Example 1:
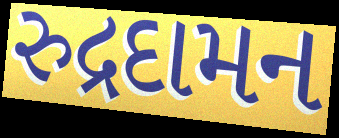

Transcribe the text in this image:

રુદ્રદામન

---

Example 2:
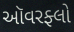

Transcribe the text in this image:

ઑવરફ્લો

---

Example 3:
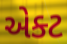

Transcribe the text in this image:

એક્ટ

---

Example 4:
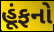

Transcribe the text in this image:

હૂંફનો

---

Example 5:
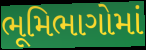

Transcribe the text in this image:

ભૂમિભાગોમાં